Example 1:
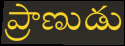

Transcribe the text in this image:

ప్రాణుడు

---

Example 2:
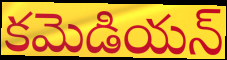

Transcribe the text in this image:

కమెడియన్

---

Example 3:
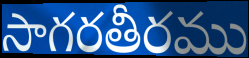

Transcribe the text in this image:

సాగరతీరము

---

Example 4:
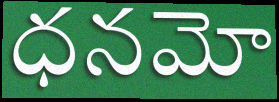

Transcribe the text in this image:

ధనమో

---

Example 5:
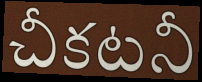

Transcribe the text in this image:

చీకటనీ